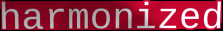
harmonized